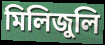
মিলিজুলি